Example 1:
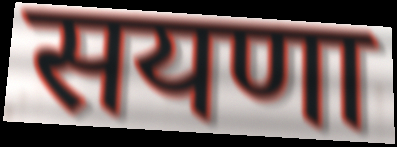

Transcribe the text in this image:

सयणा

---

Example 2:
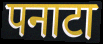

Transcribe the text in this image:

पनाटा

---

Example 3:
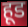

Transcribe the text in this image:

हूड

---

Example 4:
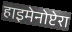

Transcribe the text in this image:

हाइमेनोप्टेरा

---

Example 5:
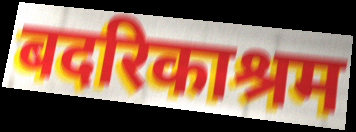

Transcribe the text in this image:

बदरिकाश्रम